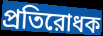
প্রতিরোধক